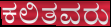
ಕಲಿತವರು